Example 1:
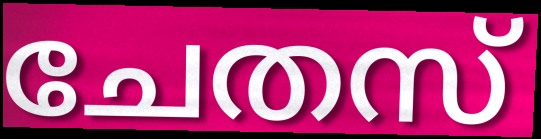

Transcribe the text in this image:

ചേതസ്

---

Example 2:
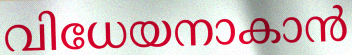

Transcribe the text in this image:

വിധേയനാകാൻ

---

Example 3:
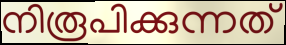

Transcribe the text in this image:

നിരൂപിക്കുന്നത്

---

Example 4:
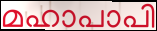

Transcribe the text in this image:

മഹാപാപി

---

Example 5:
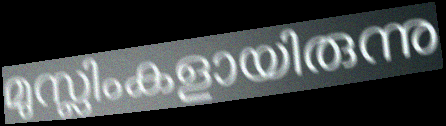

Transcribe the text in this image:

മുസ്ലിംകളായിരുന്നു